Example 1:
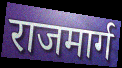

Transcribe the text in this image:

राजमार्ग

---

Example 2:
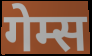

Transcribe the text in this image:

गेम्स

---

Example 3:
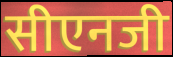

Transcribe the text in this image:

सीएनजी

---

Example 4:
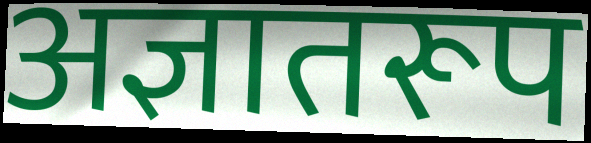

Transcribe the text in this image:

अज्ञातरूप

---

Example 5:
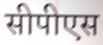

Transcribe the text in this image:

सीपीएस